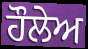
ਹੌਲੇਅ